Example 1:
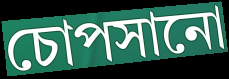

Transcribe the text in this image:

চোপসানো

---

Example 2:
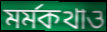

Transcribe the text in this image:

মর্মকথাও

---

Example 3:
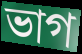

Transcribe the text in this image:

ভাগ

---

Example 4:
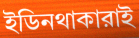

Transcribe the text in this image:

ইডিনথাকারাই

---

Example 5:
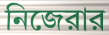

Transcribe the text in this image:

নিজেরার